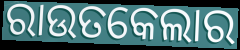
ରାଉତକେଲାର